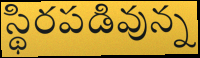
స్థిరపడివున్న